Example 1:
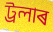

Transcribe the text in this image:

ট্ৰলাৰ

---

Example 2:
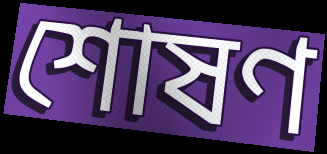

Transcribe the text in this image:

শোষণ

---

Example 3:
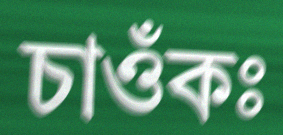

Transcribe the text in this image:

চাওঁকঃ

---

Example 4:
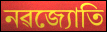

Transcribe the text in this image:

নৱজ্যোতি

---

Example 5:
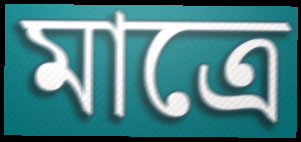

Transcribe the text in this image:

মাত্ৰে